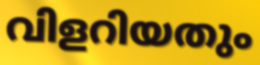
വിളറിയതും